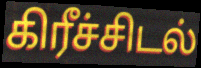
கிரீச்சிடல்